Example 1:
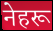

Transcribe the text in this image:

नेहरू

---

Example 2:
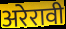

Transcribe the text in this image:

अरेरावी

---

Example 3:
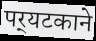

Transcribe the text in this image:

पर्यटकाने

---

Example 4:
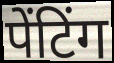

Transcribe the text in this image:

पेंटिंग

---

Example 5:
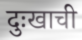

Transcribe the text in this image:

दुःखाची